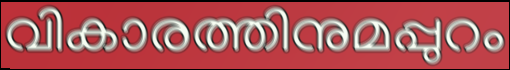
വികാരത്തിനുമപ്പുറം